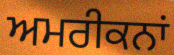
ਅਮਰੀਕਨਾਂ